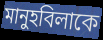
মানুহবিলাকে